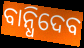
ବାନ୍ଧିଦେବ